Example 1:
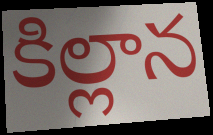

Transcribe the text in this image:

కిల్లాన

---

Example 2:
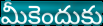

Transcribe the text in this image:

మీకెందుకు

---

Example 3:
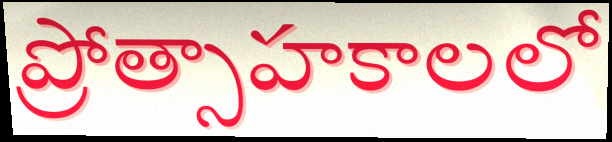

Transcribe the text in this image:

ప్రోత్సాహకాలలో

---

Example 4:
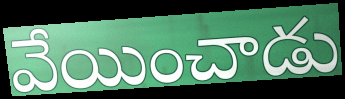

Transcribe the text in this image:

వేయించాడు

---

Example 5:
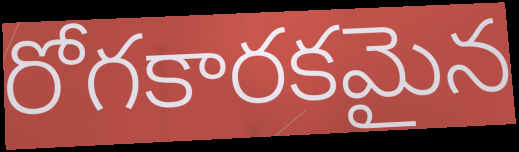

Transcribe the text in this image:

రోగకారకమైన